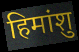
हिमांशु